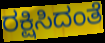
ರಕ್ಷಿಸಿದಂತೆ